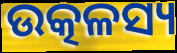
ଉତ୍କଳସ୍ୟ